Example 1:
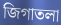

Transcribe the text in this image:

জিগাতলা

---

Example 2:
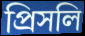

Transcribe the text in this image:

প্রিসলি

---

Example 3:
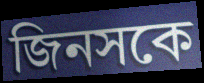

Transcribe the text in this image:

জিনসকে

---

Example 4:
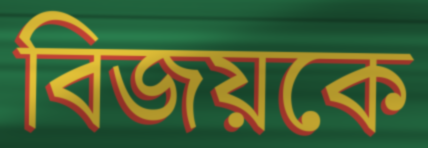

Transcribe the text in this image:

বিজয়কে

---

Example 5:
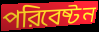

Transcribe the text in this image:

পরিবেষ্টন